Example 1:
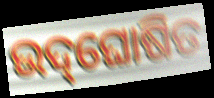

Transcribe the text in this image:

ଉଦ୍‌ଘୋଷିତ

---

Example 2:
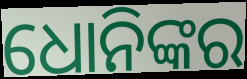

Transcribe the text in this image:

ଧୋନିଙ୍କର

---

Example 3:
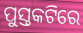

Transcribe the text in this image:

ପୁସ୍ତକଟିରେ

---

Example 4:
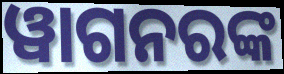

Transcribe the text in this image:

ୱାଗନରଙ୍କ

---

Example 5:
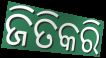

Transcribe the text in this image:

ଜିତିକରି